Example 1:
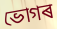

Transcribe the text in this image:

ভোগৰ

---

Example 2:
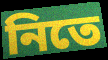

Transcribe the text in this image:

নিতে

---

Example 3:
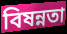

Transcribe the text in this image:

বিষন্নতা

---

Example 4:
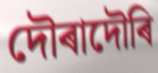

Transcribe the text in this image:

দৌৰাদৌৰি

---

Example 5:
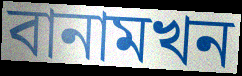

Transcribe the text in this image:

বানামখন